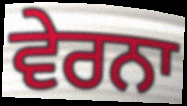
ਵੇਰਨਾ